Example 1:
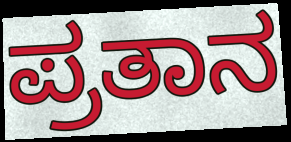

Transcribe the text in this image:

ಪ್ರತಾನ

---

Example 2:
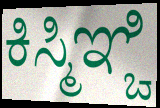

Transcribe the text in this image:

ಕಿಸ್ಮಿಞ್ಚಿ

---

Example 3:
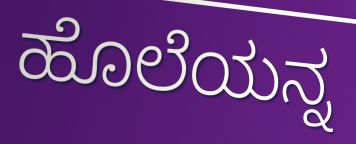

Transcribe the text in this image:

ಹೊಲೆಯನ್ನ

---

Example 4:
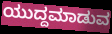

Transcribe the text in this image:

ಯುದ್ದಮಾಡುವ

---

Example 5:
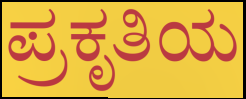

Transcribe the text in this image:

ಪ್ರಕೃತಿಯ